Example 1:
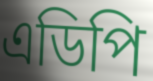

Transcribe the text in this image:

এডিপি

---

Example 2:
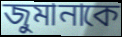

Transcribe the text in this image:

জুমানাকে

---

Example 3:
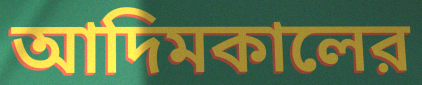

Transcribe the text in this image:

আদিমকালের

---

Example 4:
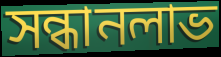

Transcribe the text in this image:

সন্ধানলাভ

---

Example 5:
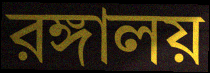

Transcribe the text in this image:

রঙ্গালয়